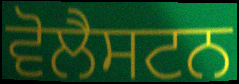
ਵੋਲੈਸਟਨ